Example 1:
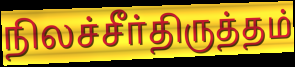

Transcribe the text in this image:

நிலச்சீர்திருத்தம்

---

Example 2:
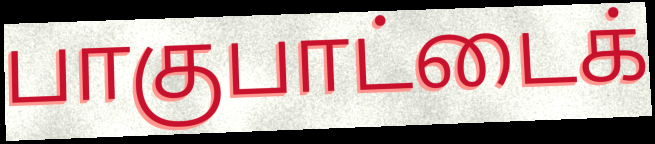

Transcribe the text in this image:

பாகுபாட்டைக்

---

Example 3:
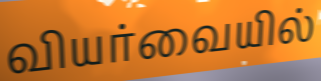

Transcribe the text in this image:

வியர்வையில்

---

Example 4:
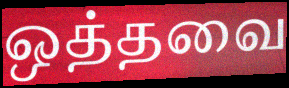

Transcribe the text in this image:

ஒத்தவை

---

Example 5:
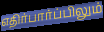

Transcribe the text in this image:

எதிர்பார்ப்பிலும்